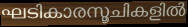
ഘടികാരസൂചികളിൽ